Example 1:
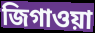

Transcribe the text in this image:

জিগাওয়া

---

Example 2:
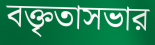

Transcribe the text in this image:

বক্তৃতাসভার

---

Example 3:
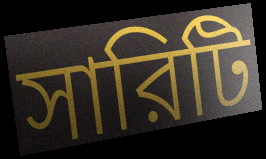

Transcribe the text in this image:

সারিটি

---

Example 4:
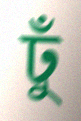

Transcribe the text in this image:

ঢুঁ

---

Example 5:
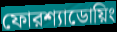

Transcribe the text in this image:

ফোরশ্যাডোয়িং